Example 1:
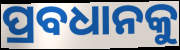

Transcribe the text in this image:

ପ୍ରବଧାନକୁ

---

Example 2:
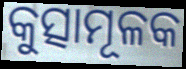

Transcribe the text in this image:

କୁତ୍ସାମୂଳକ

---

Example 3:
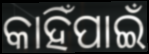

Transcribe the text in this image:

କାହିଁପାଇଁ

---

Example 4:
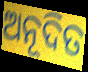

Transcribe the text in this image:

ଅନୂଦିତ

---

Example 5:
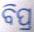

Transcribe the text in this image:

ବିପ୍ର